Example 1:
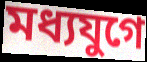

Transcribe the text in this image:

মধ্যযুগে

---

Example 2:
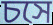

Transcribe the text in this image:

চসে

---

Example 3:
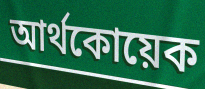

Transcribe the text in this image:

আর্থকোয়েক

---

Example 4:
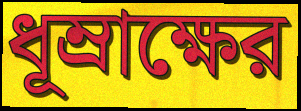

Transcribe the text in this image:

ধূম্রাক্ষের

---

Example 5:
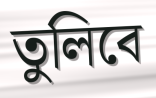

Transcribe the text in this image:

তুলিবে